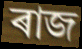
ৰাজ